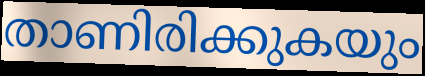
താണിരിക്കുകയും